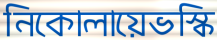
নিকোলায়েভস্কি